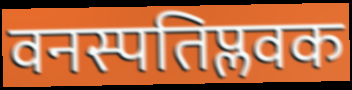
वनस्पतिप्लवक